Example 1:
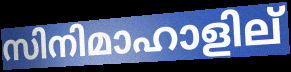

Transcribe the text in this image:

സിനിമാഹാളില്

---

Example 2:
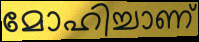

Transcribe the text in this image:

മോഹിച്ചാണ്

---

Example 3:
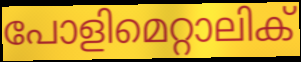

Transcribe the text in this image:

പോളിമെറ്റാലിക്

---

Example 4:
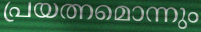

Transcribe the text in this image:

പ്രയത്നമൊന്നും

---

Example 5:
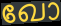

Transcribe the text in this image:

ഖോ